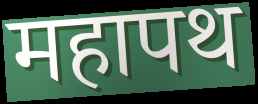
महापथ